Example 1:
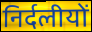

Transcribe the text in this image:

निर्दलीयों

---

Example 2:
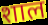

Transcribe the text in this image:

शाल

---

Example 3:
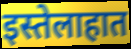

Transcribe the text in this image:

इस्तेलाहात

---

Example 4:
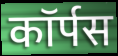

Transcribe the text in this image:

कॉर्पस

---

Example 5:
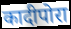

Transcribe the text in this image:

कादीपोरा